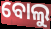
ବୋଲୁ